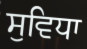
ਸੁਵਿਧਾ